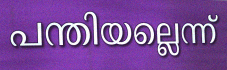
പന്തിയല്ലെന്ന്